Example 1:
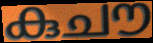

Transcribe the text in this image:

കുചൗ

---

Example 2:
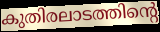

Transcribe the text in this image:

കുതിരലാടത്തിന്റെ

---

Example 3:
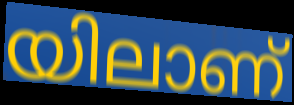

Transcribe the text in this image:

യിലാണ്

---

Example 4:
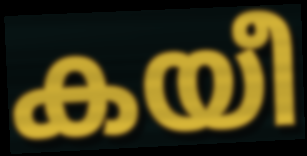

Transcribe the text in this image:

കയീ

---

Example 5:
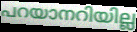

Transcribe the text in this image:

പറയാനറിയില്ല